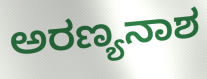
ಅರಣ್ಯನಾಶ